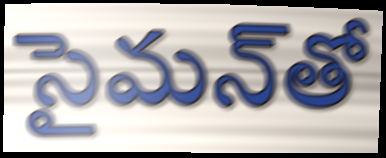
సైమన్‌తో